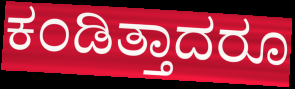
ಕಂಡಿತ್ತಾದರೂ